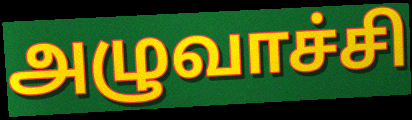
அழுவாச்சி